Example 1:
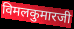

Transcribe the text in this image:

विमलकुमारजी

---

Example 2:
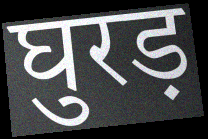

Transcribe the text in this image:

घुरड़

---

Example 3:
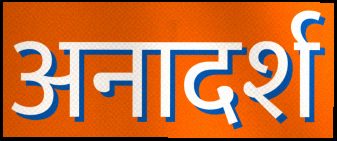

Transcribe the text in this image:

अनादर्श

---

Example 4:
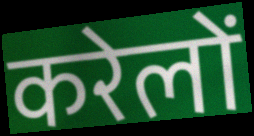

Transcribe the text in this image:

करेलों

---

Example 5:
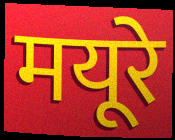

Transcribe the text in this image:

मयूरे